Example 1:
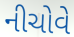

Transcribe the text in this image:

નીચોવે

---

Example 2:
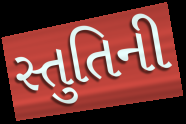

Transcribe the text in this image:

સ્તુતિની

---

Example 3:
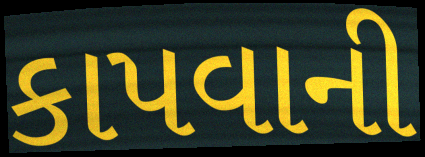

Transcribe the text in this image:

કાપવાની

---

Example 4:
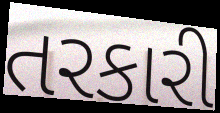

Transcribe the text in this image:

તરકારી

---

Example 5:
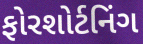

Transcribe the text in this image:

ફોરશોર્ટનિંગ